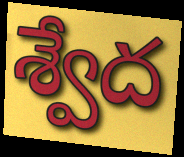
శ్వేద